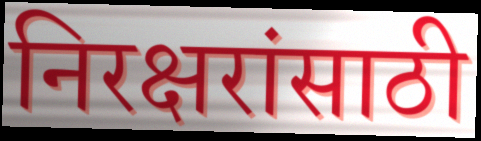
निरक्षरांसाठी